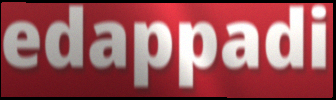
edappadi